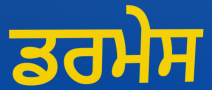
ਡਰਮੇਸ